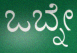
ಒಬ್ನೇ